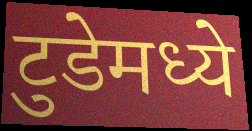
टुडेमध्ये